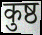
कुष्ठ